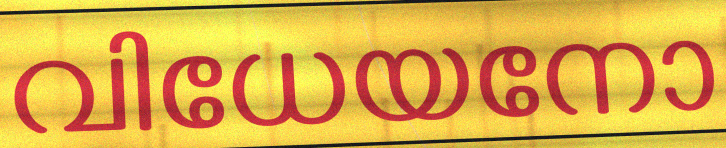
വിധേയനോ